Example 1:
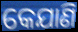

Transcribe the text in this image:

କେଯାଣି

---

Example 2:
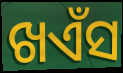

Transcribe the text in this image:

ଖଏଁସ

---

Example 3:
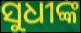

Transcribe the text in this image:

ସୁଧୀଙ୍କ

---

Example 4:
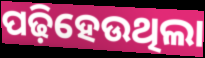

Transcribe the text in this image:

ପଢ଼ିହେଉଥିଲା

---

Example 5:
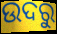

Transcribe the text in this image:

ଉଦରୁ